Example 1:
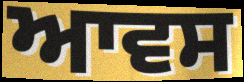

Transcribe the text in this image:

ਆਵਸ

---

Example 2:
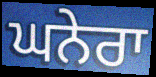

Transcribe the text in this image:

ਘਨੇਰਾ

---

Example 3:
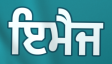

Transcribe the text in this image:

ਇਮੈਜ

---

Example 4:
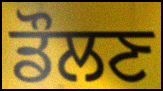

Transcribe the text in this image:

ਡੌਲਣ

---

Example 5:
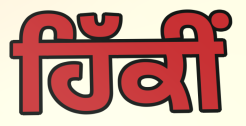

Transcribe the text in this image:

ਹਿੱਕੀਂ